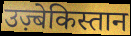
उज़्बेकिस्तान